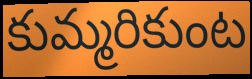
కుమ్మరికుంట